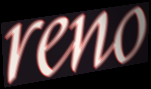
reno